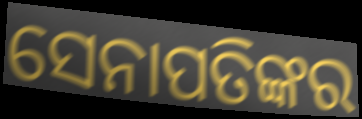
ସେନାପତିଙ୍କର